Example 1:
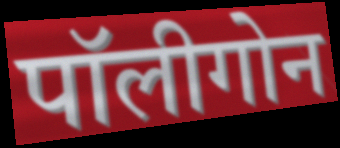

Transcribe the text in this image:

पॉलीगोन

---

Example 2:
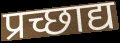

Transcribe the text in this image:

प्रच्छाद्य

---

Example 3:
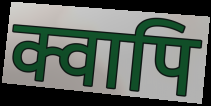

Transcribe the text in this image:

क्वापि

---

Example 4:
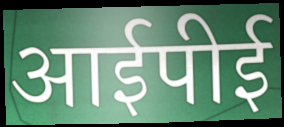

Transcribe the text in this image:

आईपीई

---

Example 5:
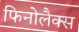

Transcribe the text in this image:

फिनोलैक्स